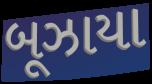
બૂઝાયા